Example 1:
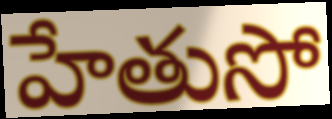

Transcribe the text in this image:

హేతుసో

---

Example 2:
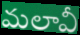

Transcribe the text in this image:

మలావీ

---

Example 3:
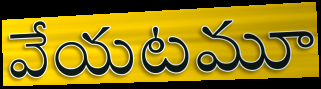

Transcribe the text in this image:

వేయటమూ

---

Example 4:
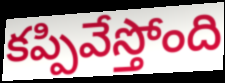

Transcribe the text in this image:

కప్పివేస్తోంది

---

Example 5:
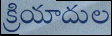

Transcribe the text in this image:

క్రియాదుల